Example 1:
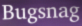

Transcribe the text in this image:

Bugsnag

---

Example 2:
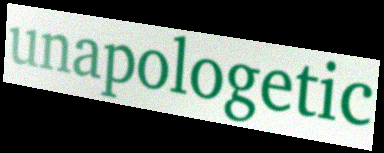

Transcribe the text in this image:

unapologetic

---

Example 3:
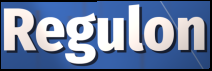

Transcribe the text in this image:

Regulon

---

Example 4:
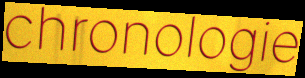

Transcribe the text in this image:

chronologie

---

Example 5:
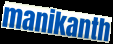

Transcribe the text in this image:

manikanth